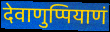
देवाणुप्पियाणं